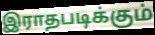
இராதபடிக்கும்